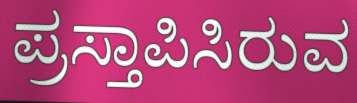
ಪ್ರಸ್ತಾಪಿಸಿರುವ